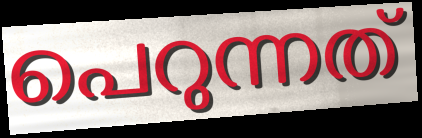
പെറുന്നത്